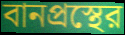
বানপ্রস্থের